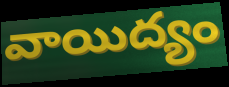
వాయిద్యం